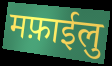
मफ़ाईलु